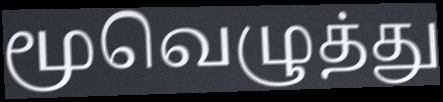
மூவெழுத்து